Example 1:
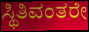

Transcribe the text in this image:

ಸ್ಥಿತಿವಂತರೇ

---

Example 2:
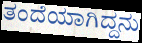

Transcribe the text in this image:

ತಂದೆಯಾಗಿದ್ದನು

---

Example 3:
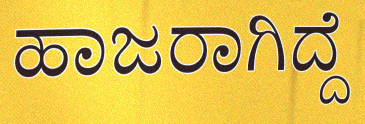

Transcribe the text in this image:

ಹಾಜರಾಗಿದ್ದೆ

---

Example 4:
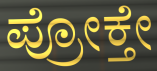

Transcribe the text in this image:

ಪ್ರೋಕ್ತೇ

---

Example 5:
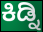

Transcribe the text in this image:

ಕಿಡ್ನಿ